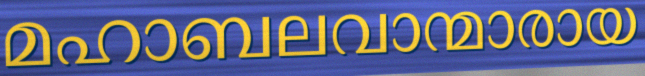
മഹാബലവാന്മാരായ